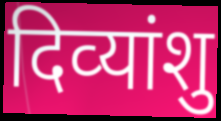
दिव्‍यांशु